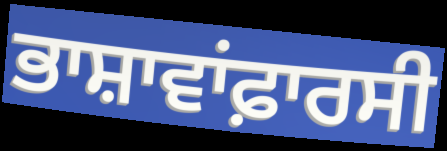
ਭਾਸ਼ਾਵਾਂਫ਼ਾਰਸੀ